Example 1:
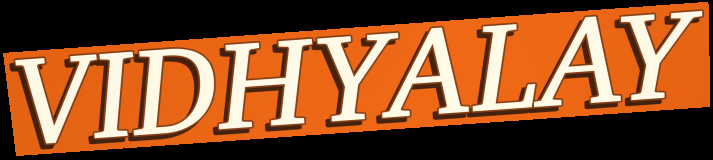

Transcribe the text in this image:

VIDHYALAY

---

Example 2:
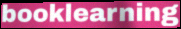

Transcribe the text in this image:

booklearning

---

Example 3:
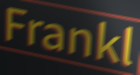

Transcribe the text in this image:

Frankl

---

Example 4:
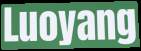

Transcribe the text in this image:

Luoyang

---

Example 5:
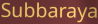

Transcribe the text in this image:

Subbaraya